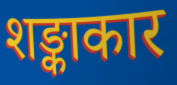
शङ्काकार